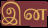
இன